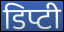
डिप्‍टी